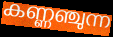
കണ്ണഞ്ചുന്ന